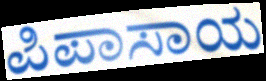
ಪಿಪಾಸಾಯ